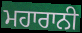
ਮਹਾਰਾਨੀ